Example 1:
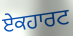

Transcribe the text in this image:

ਏਕਹਾਰਟ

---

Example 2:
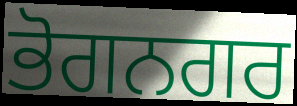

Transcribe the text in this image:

ਭੋਗਨਗਰ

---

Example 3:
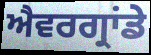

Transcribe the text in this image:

ਐਵਰਗ੍ਰਾਂਡੇ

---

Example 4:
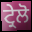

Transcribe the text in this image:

ਟ੍ਰੇਲੋ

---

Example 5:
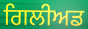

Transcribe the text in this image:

ਗਿਲੀਅਡ